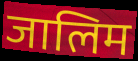
जालिम